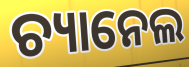
ଚ୍ୟାନେଲ